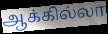
ஆக்கில்லா